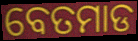
ବେତମାଡ